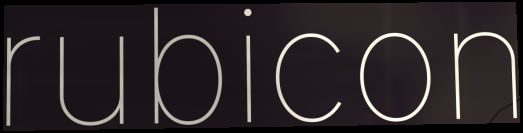
rubicon